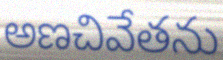
అణచివేతను